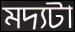
মদ্যটা